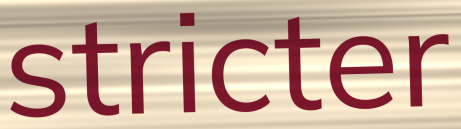
stricter